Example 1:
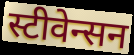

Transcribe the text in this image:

स्टीवेन्सन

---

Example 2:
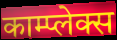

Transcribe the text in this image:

काम्प्लेक्स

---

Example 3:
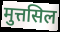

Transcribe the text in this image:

मुत्तसिल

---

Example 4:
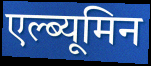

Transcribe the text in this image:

एल्ब्यूमिन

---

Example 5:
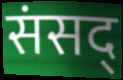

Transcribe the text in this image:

संसद्